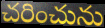
చరించును